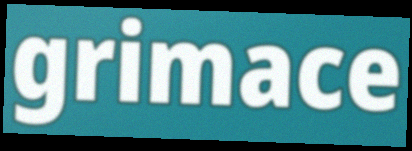
grimace